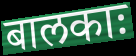
बालकाः